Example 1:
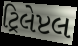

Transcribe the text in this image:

ટ્રિલેપ્ટલ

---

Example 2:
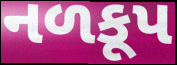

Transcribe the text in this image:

નળકૂપ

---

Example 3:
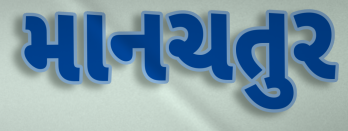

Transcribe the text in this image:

માનચતુર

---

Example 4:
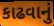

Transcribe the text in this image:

કાઢવાનું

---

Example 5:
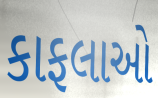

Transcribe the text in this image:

કાફલાઓ